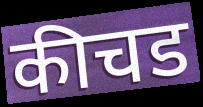
कीचड